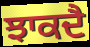
ਝਾਕਦੈ